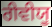
ਰੀਵੀਯੂ